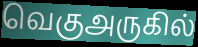
வெகுஅருகில்